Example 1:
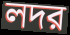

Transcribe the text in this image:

লদর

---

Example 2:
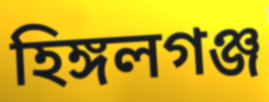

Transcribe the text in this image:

হিঙ্গলগঞ্জ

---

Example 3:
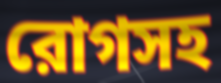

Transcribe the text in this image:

রোগসহ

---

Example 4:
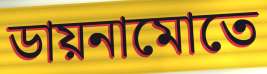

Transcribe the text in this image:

ডায়নামোতে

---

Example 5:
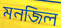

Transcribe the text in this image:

মনজিল